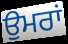
ਉਮਰਾਂ